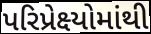
પરિપ્રેક્ષ્યોમાંથી